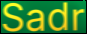
Sadr